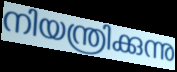
നിയന്ത്രിക്കുന്നു